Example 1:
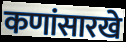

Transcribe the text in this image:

कणांसारखे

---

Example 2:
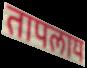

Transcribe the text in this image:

तापलाय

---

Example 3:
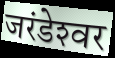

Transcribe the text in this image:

जरंडेश्वर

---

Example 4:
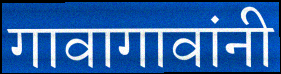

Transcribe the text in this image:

गावागावांनी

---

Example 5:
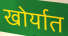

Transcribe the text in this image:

खोर्यात